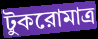
টুকরোমাত্র